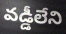
వడ్డీలేని